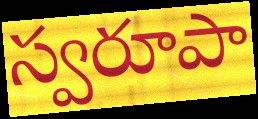
స్వరూపా